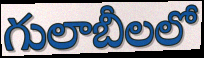
గులాబీలలో